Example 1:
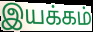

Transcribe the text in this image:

இயக்கம்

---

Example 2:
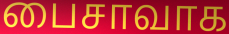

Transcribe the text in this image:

பைசாவாக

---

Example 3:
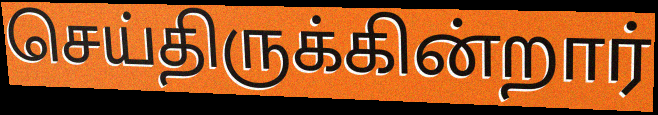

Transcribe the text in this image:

செய்திருக்கின்றார்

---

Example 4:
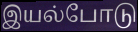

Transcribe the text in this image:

இயல்போடு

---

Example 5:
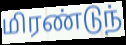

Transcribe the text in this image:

மிரண்டுந்